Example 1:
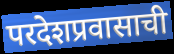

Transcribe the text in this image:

परदेशप्रवासाची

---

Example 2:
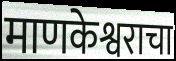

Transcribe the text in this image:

माणकेश्वराचा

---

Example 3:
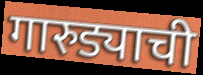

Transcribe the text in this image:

गारुड्याची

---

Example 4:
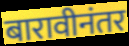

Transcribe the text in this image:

बारावीनंतर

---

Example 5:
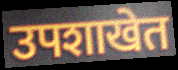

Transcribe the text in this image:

उपशाखेत